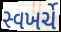
સ્વખર્ચે